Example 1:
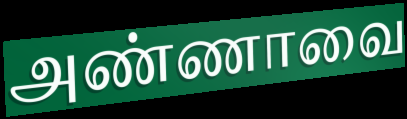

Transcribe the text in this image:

அண்ணாவை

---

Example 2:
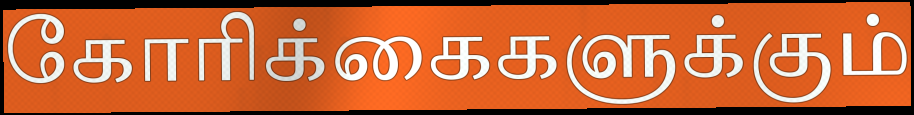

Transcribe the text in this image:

கோரிக்கைகளுக்கும்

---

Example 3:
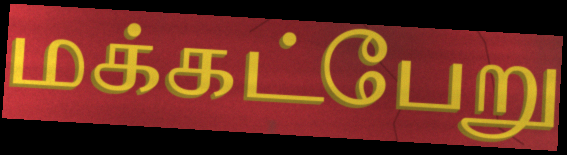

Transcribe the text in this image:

மக்கட்பேறு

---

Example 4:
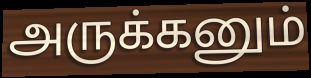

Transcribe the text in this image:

அருக்கனும்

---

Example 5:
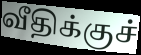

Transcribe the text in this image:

வீதிக்குச்